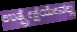
ಉತ್ಪ್ರೇಕ್ಷೆಯೇನಲ್ಲ